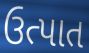
ઉત્પાત